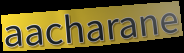
aacharane